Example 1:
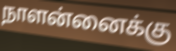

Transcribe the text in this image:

நாளன்னைக்கு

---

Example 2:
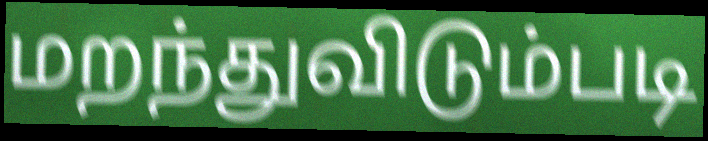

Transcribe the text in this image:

மறந்துவிடும்படி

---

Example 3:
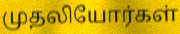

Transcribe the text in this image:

முதலியோர்கள்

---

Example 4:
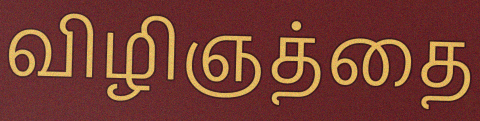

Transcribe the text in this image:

விழிஞத்தை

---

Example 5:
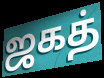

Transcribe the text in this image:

ஜகத்